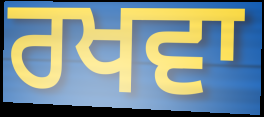
ਰਖਵਾ